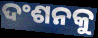
ଦଂଶନକୁ